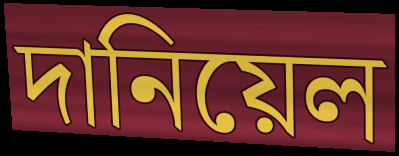
দানিয়েল